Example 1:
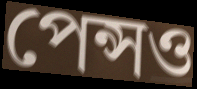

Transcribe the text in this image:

পেন্সও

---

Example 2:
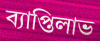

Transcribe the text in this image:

ব্যাপ্তিলাভ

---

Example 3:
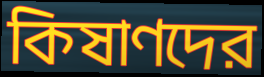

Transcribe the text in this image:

কিষাণদের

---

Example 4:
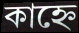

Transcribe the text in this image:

কাহ্নে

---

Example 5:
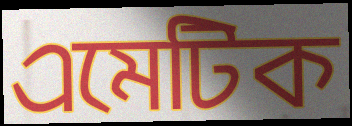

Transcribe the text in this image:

এমেটিক